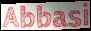
Abbasi